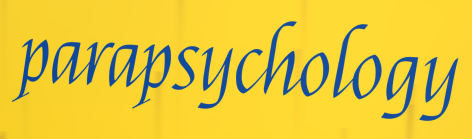
parapsychology